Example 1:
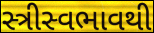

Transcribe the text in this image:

સ્ત્રીસ્વભાવથી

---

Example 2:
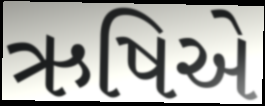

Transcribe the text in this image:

ઋષિએ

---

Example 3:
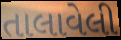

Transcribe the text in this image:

તાલાવેલી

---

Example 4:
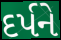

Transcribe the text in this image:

દર્પને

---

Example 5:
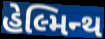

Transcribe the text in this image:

હેલ્મિન્થ